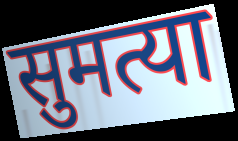
सुमत्या